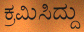
ಕ್ರಮಿಸಿದ್ದು